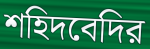
শহিদবেদির